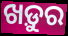
ଖଡ଼ୁର